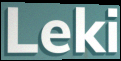
Leki